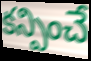
కన్పించే